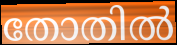
തോതിൽ